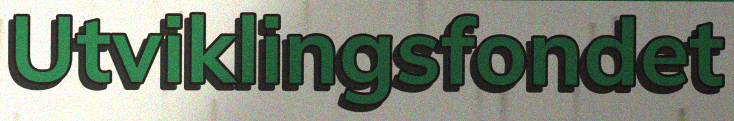
Utviklingsfondet